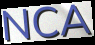
NCA